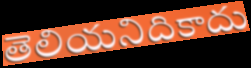
తెలియనిదికాదు